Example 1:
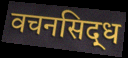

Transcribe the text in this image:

वचनसिद्ध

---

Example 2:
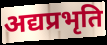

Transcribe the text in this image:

अद्यप्रभृति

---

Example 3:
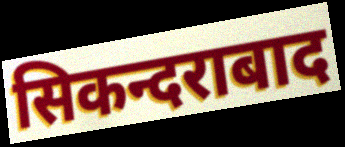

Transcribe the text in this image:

सिकन्दराबाद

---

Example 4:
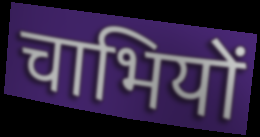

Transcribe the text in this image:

चाभियों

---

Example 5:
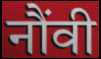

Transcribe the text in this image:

नौंवी